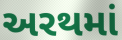
અરથમાં